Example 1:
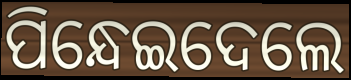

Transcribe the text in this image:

ପିନ୍ଧେଇଦେଲେ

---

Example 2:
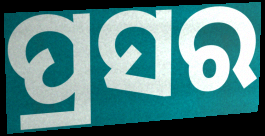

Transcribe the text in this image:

ପ୍ରସର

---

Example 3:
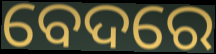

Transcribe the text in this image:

ବେଦରେ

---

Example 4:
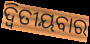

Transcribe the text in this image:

ଦ୍ୱିତୀୟବାର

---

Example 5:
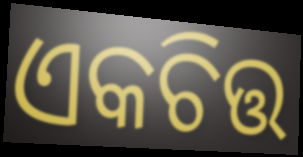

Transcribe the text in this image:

ଏକଚିତ୍ତ